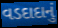
વડદાદાનું